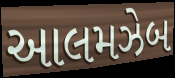
આલમઝેબ